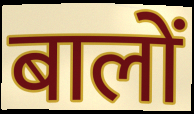
बालों